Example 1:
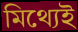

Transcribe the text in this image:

মিথ্যেই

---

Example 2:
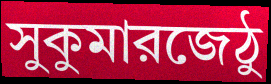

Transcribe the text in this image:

সুকুমারজেঠু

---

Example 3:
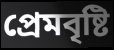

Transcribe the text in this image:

প্রেমবৃষ্টি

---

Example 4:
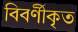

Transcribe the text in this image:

বিবর্ণীকৃত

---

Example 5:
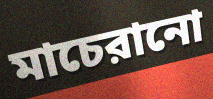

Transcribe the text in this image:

মাচেরানো